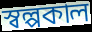
স্বল্পকাল